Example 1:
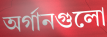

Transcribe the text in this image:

অর্গানগুলো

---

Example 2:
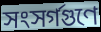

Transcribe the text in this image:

সংসর্গগুণে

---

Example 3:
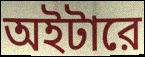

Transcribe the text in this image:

অইটারে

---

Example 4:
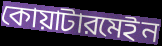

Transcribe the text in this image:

কোয়াটারমেইন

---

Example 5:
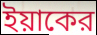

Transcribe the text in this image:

ইয়াকের